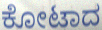
ಕೋಟಾದ